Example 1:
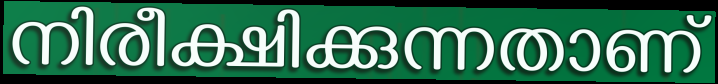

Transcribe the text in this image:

നിരീക്ഷിക്കുന്നതാണ്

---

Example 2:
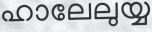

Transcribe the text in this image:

ഹാലേലുയ്യ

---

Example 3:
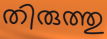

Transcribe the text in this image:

തിരുത്തു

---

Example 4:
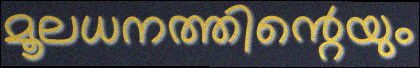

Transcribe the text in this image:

മൂലധനത്തിന്റെയും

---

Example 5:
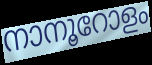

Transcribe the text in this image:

നാനൂറോളം